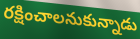
రక్షించాలనుకున్నాడు